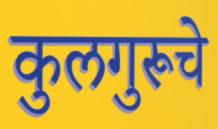
कुलगुरूचे